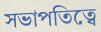
সভাপতিত্বে